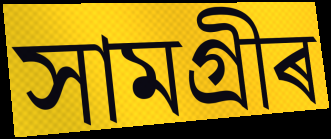
সামগ্ৰীৰ